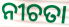
ନୀଚତା